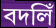
বদলিঁ